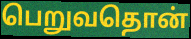
பெறுவதொன்